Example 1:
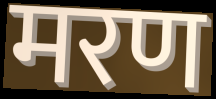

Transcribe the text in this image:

मरण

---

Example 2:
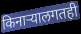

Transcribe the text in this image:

किनाऱ्यालगतही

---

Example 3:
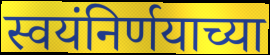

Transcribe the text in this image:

स्वयंनिर्णयाच्या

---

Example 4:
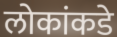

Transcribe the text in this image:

लोकांकडे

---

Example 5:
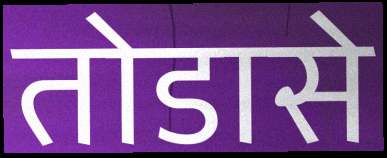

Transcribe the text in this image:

तोडासे